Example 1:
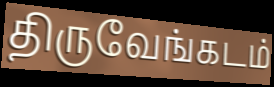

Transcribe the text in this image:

திருவேங்கடம்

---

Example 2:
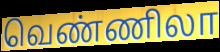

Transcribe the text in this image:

வெண்ணிலா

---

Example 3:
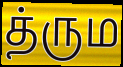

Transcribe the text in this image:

த்ரும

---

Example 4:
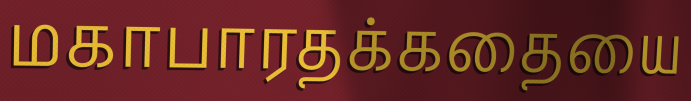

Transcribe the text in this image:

மகாபாரதக்கதையை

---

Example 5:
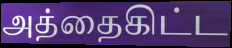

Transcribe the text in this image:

அத்தைகிட்ட